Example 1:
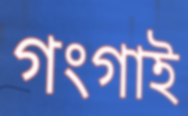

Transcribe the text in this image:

গংগাই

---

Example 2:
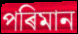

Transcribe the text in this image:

পৰিমান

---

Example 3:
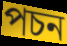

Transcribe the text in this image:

পচন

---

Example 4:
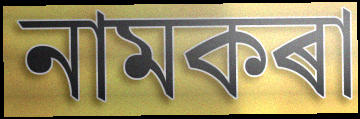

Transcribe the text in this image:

নামকৰা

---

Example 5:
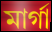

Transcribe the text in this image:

মাৰ্গা